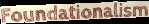
Foundationalism